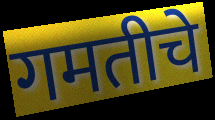
गमतीचे